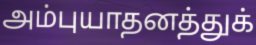
அம்புயாதனத்துக்